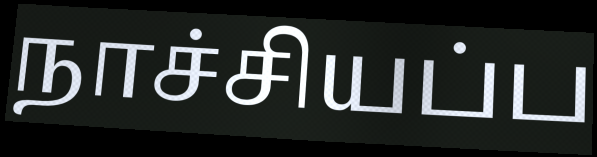
நாச்சியப்ப